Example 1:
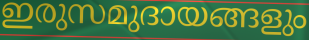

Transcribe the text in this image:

ഇരുസമുദായങ്ങളും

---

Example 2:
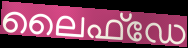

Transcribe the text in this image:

ലൈഫ്ഡേ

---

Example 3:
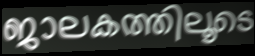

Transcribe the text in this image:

ജാലകത്തിലൂടെ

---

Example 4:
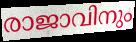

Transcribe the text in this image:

രാജാവിനും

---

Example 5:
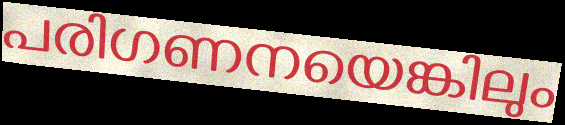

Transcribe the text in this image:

പരിഗണനയെങ്കിലും